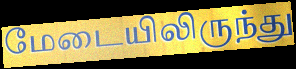
மேடையிலிருந்து